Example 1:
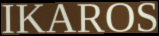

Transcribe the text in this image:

IKAROS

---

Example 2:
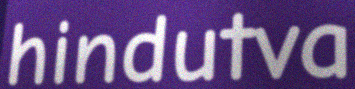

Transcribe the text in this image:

hindutva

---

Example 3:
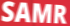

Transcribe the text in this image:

SAMR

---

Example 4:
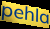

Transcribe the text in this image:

pehla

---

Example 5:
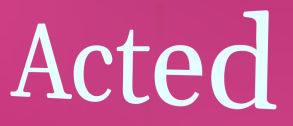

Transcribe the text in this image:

Acted